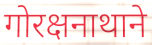
गोरक्षनाथाने